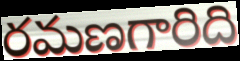
రమణగారిది